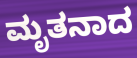
ಮೃತನಾದ